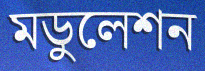
মডুলেশন